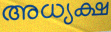
അധ്യക്ഷ